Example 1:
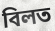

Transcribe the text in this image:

বিলত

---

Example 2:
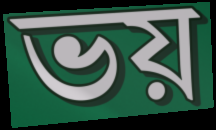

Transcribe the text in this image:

ভয়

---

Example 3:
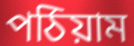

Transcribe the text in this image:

পঠিয়াম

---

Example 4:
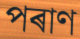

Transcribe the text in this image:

পৰাণ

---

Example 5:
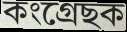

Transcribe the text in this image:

কংগ্ৰেছক